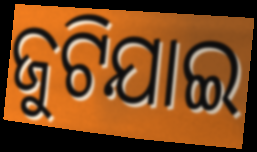
ଜୁଟିଯାଇ